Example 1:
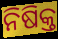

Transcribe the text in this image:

ନିଷିକ୍ତ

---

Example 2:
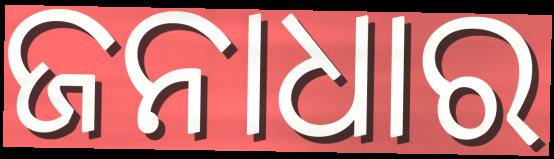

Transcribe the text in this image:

ଜନାଧାର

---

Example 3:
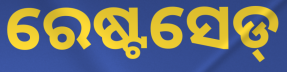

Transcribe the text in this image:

ରେଷ୍ଟସେଡ୍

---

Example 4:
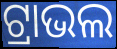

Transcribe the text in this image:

ଟ୍ରାଭଲ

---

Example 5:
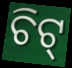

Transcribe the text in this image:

ଚିଟ୍